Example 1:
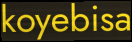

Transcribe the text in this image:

koyebisa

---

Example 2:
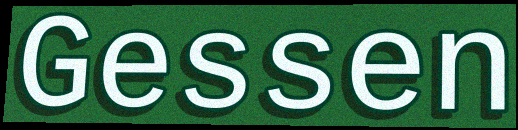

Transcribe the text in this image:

Gessen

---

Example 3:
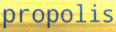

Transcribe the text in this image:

propolis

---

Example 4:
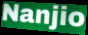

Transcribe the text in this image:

Nanjio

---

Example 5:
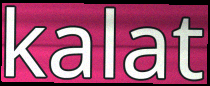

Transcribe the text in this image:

kalat